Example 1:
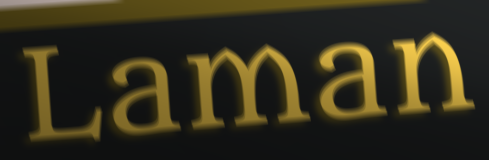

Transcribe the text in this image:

Laman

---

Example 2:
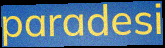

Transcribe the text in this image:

paradesi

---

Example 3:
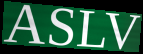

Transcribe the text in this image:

ASLV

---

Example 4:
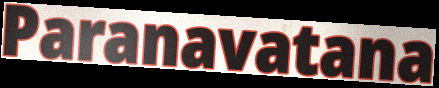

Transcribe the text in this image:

Paranavatana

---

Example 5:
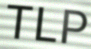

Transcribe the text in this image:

TLP